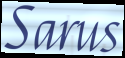
Sarus